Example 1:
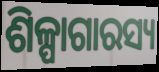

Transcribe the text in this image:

ଶିଳ୍ପାଗାରସ୍ୟ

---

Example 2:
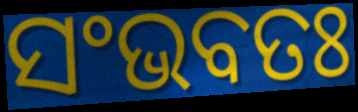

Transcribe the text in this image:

ସଂଭବତଃ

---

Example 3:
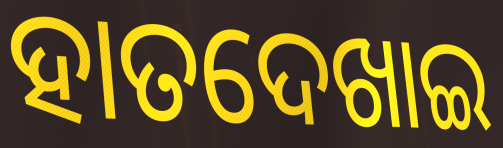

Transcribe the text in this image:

ହାତଦେଖାଇ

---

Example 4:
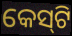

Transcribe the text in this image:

କେସ୍‌ଟି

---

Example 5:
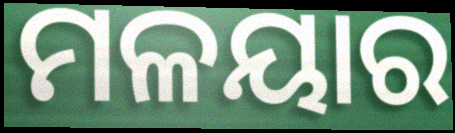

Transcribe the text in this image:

ମଳୟାର